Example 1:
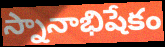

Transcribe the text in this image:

స్నానాభిషేకం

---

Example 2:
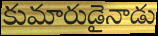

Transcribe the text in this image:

కుమారుడైనాడు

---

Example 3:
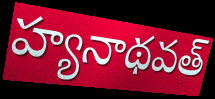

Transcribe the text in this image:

హ్యనాథవత్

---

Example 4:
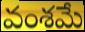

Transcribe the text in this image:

వంశమే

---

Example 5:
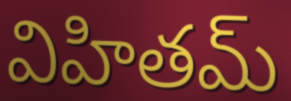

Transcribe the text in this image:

విహితమ్